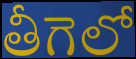
తీగెలో